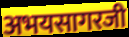
अभयसागरजी